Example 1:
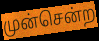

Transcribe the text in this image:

முன்சென்ற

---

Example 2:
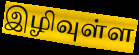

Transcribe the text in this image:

இழிவுள்ள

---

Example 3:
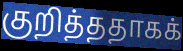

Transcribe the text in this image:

குறித்ததாகக்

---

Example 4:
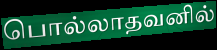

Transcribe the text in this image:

பொல்லாதவனில்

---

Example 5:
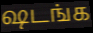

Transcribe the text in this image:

ஷடங்க